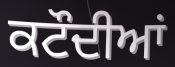
ਕਟੌਦੀਆਂ